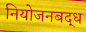
नियोजनबद्ध